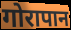
गोरापान